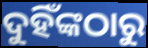
ଦୁହିଁଙ୍କଠାରୁ